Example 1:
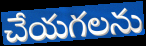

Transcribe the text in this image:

చేయగలను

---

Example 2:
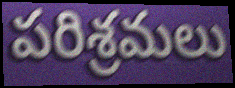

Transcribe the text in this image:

పరిశ్రమలు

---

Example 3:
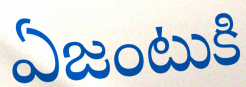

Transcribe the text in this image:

ఏజంటుకి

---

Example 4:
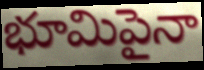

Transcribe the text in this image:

భూమిపైనా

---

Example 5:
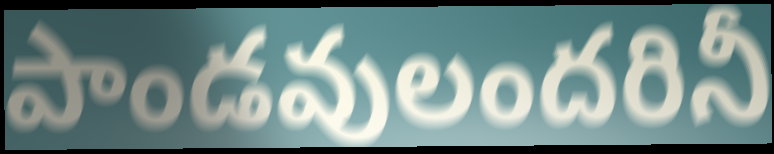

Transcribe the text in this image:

పాండవులందరినీ